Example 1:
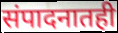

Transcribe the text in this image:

संपादनातही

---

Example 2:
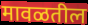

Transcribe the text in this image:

मावळतील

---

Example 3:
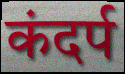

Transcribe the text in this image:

कंदर्प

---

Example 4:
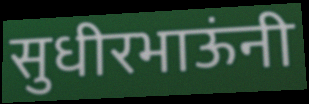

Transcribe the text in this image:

सुधीरभाऊंनी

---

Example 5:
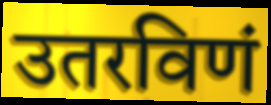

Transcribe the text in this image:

उतरविणं